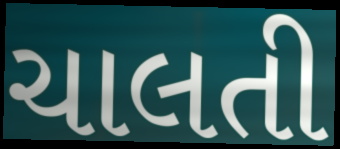
ચાલતી